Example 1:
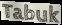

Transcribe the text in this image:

Tabuk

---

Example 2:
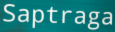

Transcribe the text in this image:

Saptraga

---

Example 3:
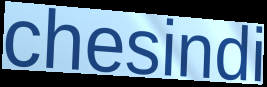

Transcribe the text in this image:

chesindi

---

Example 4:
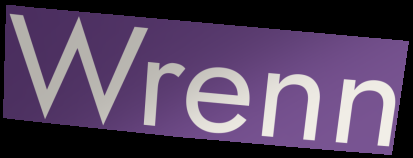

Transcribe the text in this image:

Wrenn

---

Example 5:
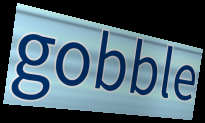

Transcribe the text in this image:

gobble